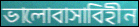
ভালোবাসাবিহীন